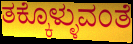
ತಕ್ಕೊಳ್ಳುವಂತೆ